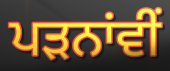
ਪੜਨਾਂਵੀਂ